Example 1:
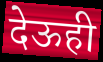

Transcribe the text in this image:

देऊही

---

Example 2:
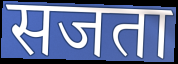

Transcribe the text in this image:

सजता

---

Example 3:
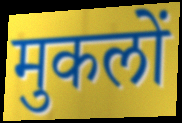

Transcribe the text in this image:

मुकलों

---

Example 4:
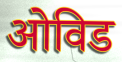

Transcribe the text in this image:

ओविड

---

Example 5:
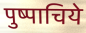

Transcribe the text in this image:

पुष्पाचिये